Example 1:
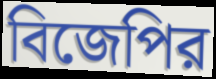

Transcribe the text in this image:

বিজেপির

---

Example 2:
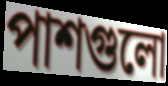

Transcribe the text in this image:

পাশগুলো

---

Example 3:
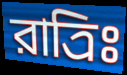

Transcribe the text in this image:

রাত্রিঃ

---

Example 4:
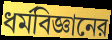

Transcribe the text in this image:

ধর্মবিজ্ঞানের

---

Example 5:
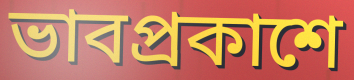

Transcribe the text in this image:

ভাবপ্রকাশে